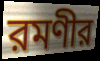
রমণীর